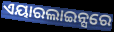
ଏୟାରଲାଇନ୍ସରେ